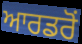
ਆਰਡਰੋਂ